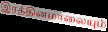
இரத்தினமாலையும்